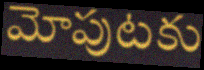
మోపుటకు